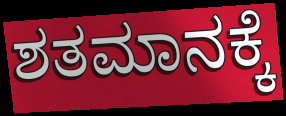
ಶತಮಾನಕ್ಕೆ